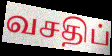
வசதிப்